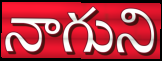
నాగుని